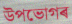
উপভোগৰ